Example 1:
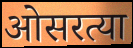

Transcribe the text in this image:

ओसरत्या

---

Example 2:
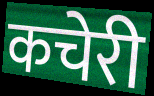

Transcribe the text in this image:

कचेरी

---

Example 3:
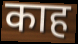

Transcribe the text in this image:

काह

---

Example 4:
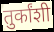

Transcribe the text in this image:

तुर्कांशी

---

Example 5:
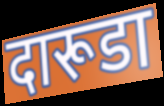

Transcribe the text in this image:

दारूडा